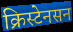
क्रिस्टेनसन